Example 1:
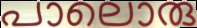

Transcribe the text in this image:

പാലൊരു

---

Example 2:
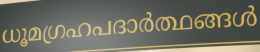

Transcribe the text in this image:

ധൂമഗ്രഹപദാർത്ഥങ്ങൾ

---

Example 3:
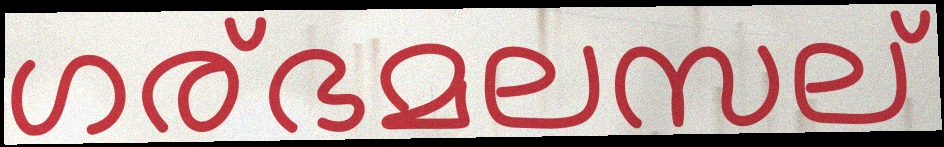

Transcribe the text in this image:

ഗര്ഭമലസല്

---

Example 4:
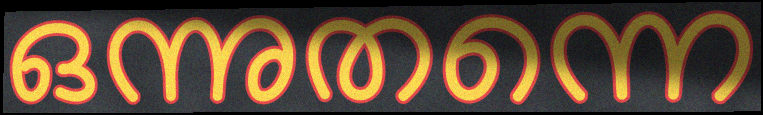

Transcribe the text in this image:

ഒന്നുതന്നെ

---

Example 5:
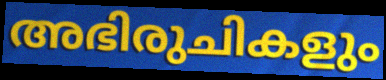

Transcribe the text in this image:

അഭിരുചികളും